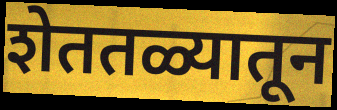
शेततळ्यातून